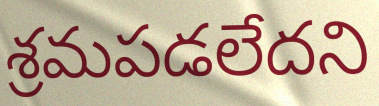
శ్రమపడలేదని